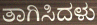
ತಾಗಿಸಿದಳು